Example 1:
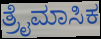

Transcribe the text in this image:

ತ್ರೈಮಾಸಿಕ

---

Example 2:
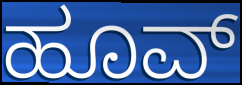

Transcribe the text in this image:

ಹೂವ್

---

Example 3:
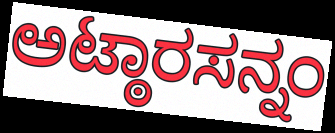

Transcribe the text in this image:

ಅಟ್ಠಾರಸನ್ನಂ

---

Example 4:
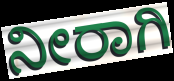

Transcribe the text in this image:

ನೀರಾಗಿ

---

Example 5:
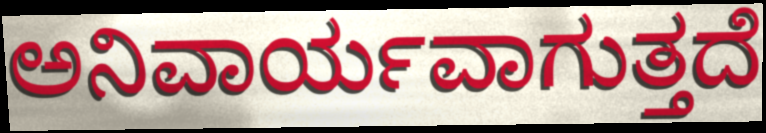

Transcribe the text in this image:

ಅನಿವಾರ್ಯವಾಗುತ್ತದೆ